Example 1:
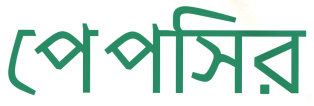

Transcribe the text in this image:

পেপসির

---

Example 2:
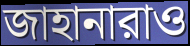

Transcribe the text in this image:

জাহানারাও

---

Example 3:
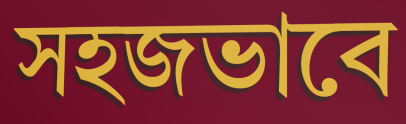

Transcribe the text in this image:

সহজভাবে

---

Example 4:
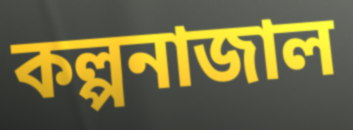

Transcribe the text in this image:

কল্পনাজাল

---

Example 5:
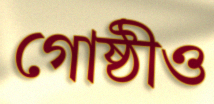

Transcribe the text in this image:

গোষ্ঠীও